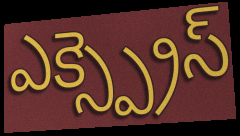
ఎక్స్ప్రెస్